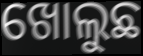
ଖୋଲୁଛ